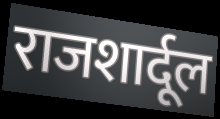
राजशार्दूल